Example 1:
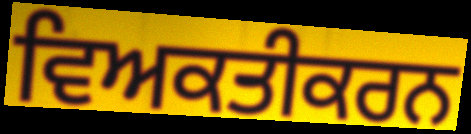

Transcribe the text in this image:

ਵਿਅਕਤੀਕਰਨ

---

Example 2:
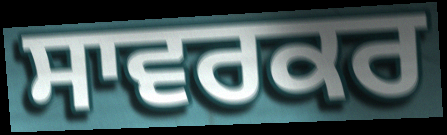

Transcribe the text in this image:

ਸਾਵਰਕਰ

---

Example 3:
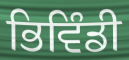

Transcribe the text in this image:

ਭਿਵਿੰਡੀ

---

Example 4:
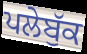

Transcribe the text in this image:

ਪਲੇਬੁੱਕ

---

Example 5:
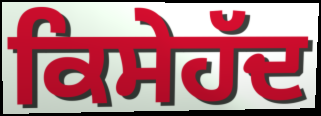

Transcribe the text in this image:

ਕਿਸੇਹੱਦ